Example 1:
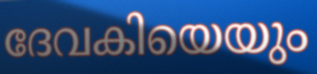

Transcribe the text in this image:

ദേവകിയെയും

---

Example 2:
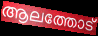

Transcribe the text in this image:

ആലത്തോട്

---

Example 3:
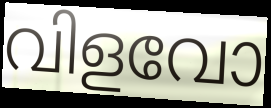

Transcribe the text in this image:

വിളവോ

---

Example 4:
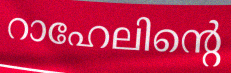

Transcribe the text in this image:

റാഹേലിന്റെ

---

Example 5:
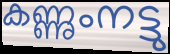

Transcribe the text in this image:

കണ്ണുംനട്ടു